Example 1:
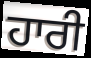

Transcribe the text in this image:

ਹਾਰੀ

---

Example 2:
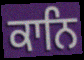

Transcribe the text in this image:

ਕਾਨਿ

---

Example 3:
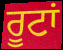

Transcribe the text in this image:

ਰੂਟਾਂ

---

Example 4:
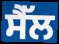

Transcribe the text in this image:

ਸੈੱਲ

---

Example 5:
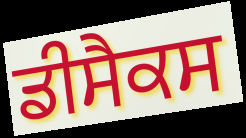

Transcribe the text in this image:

ਡੀਸੈਕਸ